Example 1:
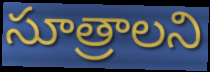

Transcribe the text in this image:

సూత్రాలని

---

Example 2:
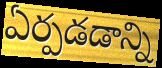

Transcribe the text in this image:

ఏర్పడడాన్ని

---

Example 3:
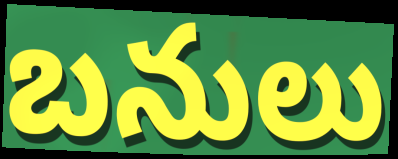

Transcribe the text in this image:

బనులు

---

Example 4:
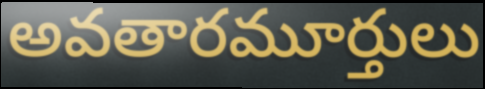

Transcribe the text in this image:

అవతారమూర్తులు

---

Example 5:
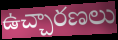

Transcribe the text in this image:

ఉచ్చారణలు